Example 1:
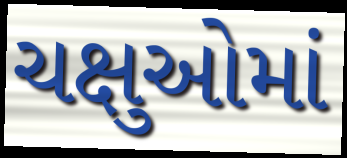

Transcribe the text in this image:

ચક્ષુઓમાં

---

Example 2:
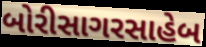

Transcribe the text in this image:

બોરીસાગરસાહેબ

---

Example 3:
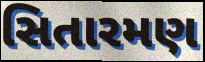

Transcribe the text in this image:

સિતારમણ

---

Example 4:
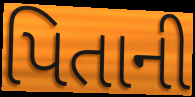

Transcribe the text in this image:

પિતાની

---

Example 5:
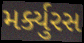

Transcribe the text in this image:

મર્ક્યુરસ